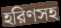
হরিণসহ